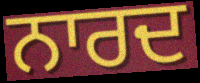
ਨਾਰਦ